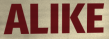
ALIKE